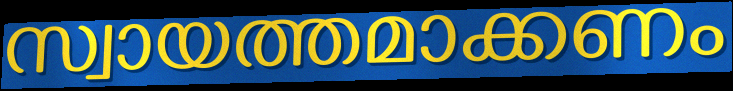
സ്വായത്തമാക്കണം